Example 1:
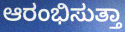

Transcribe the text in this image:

ಆರಂಭಿಸುತ್ತಾ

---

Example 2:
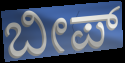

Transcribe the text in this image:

ಬೀಪ್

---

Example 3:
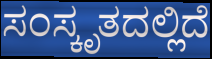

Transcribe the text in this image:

ಸಂಸ್ಕೃತದಲ್ಲಿದೆ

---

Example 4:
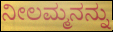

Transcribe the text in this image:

ನೀಲಮ್ಮನನ್ನು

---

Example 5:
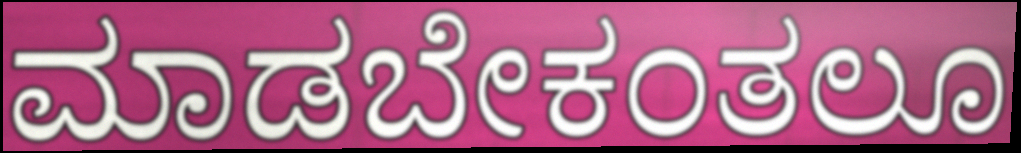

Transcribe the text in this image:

ಮಾಡಬೇಕಂತಲೂ